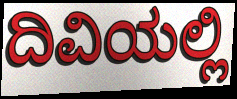
ದಿವಿಯಲ್ಲಿ